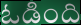
ఓడింది